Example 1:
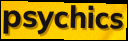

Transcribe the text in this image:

psychics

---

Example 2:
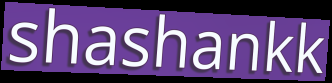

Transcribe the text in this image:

shashankk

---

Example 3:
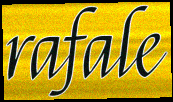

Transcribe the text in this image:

rafale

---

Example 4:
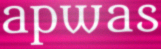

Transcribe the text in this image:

apwas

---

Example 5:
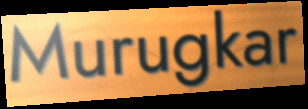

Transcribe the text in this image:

Murugkar